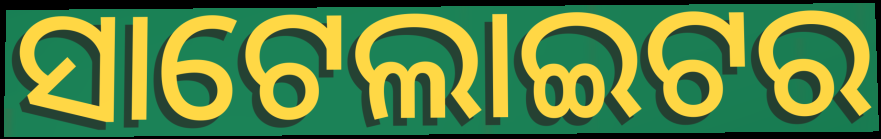
ସାଟେଲାଇଟର